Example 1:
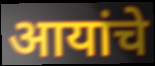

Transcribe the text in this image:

आयांचे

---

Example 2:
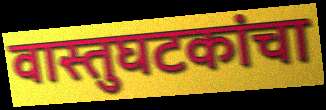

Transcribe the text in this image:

वास्तुघटकांचा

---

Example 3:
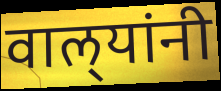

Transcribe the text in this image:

वाल्यांनी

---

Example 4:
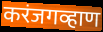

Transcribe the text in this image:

करंजगव्हाण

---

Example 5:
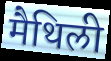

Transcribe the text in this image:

मैथिली